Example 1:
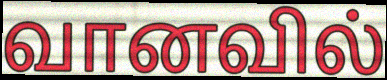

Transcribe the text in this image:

வானவில்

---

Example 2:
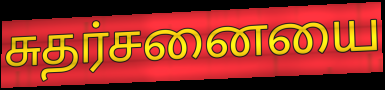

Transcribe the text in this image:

சுதர்சனையை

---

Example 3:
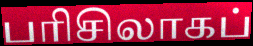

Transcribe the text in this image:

பரிசிலாகப்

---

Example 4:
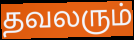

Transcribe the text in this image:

தவலரும்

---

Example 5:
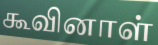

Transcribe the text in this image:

கூவினாள்